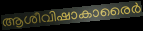
ആശീവിഷാകാരൈർ